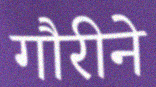
गौरीने